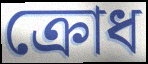
ক্রোধ